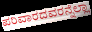
ಪರಿವಾರದವರನ್ನೆಲ್ಲಾ